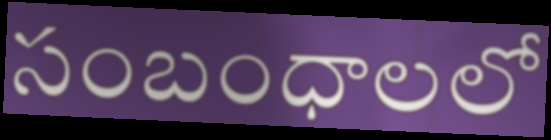
సంబంధాలలో